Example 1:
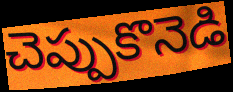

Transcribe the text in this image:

చెప్పుకొనెడి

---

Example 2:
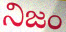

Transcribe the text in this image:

నిజం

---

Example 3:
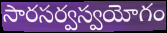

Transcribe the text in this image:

సారసర్వస్వయోగం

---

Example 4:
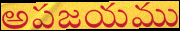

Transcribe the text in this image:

అపజయము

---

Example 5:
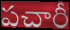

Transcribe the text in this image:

పచారీ